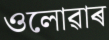
ওলোৱাৰ